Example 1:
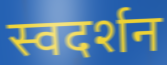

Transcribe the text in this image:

स्वदर्शन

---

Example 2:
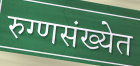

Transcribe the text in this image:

रुग्णसंख्येत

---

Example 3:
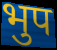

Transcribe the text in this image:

भुप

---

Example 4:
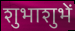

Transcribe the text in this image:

शुभाशुभें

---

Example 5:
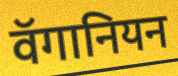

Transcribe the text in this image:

वॅगानियन